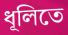
ধূলিতে